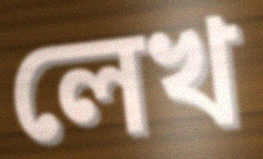
লেখ